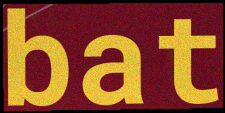
bat